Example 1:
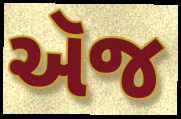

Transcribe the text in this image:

ઍજ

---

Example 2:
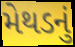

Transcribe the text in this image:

મેથડનું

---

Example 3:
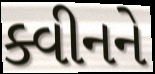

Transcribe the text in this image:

ક્વીનને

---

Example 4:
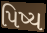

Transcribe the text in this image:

પિષ્ય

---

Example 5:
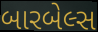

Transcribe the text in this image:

બારબેલ્સ